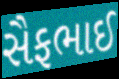
સૈફભાઈ